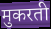
मुकरती